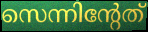
സെന്നിന്റേത്